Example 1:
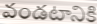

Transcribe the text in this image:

వండటానికి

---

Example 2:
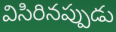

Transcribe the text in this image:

విసిరినప్పుడు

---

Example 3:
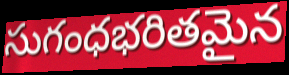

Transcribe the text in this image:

సుగంధభరితమైన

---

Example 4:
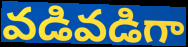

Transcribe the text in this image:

వడివడిగా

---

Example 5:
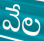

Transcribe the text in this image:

వేల